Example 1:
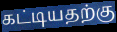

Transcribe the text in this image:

கட்டியதற்கு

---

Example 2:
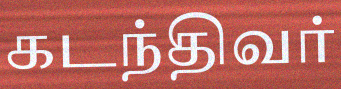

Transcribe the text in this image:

கடந்திவர்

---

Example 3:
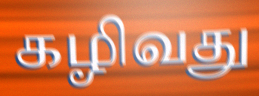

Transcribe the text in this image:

கழிவது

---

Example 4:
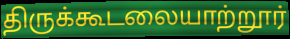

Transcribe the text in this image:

திருக்கூடலையாற்றூர்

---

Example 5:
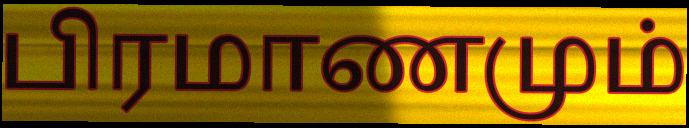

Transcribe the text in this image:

பிரமாணமும்